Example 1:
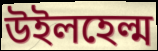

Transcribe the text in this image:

উইলহেল্ম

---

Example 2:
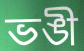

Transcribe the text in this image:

ভঙী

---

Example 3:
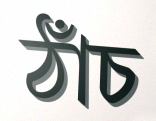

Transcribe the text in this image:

ঠাঁচ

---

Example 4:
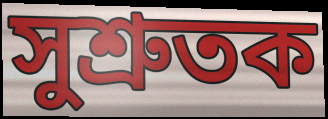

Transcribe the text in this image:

সুশ্ৰুতক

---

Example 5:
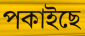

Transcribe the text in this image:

পকাইছে